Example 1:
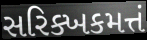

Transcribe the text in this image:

સરિક્ખકમત્તં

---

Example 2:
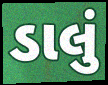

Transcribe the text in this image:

ડાલું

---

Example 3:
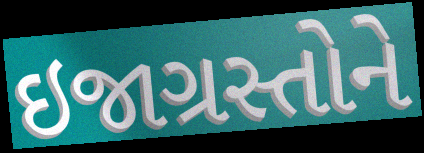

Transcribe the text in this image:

ઇજાગ્રસ્તોને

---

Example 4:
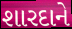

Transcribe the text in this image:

શારદાને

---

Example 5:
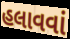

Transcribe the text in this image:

હલાવવાં